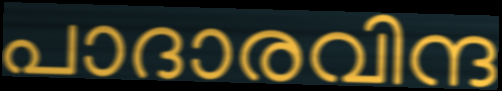
പാദാരവിന്ദ